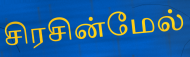
சிரசின்மேல்